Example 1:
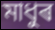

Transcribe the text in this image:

মাধুৰ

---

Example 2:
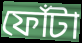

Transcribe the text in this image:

ফোঁটা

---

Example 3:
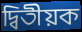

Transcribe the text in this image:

দ্বিতীয়ক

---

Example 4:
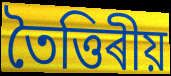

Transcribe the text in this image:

তৈত্তিৰীয়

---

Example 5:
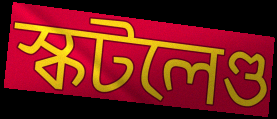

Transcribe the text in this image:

স্কটলেণ্ড